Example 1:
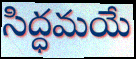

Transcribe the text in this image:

సిద్ధమయే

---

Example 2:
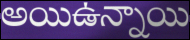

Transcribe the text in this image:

అయిఉన్నాయి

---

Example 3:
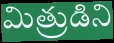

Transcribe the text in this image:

మిత్రుడిని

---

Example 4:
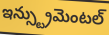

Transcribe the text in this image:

ఇన్స్ట్రుమెంటల్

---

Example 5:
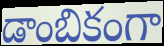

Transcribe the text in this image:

డాంబికంగా